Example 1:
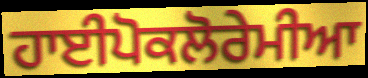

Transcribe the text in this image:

ਹਾਈਪੋਕਲੋਰੇਮੀਆ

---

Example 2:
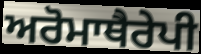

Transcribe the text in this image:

ਅਰੋਮਾਥੈਰੇਪੀ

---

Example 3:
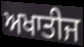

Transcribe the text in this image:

ਅਖਾਤੀਜ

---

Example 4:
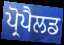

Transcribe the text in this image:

ਪ੍ਰੋਪੈਲਡ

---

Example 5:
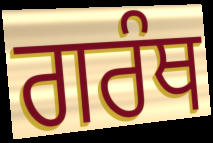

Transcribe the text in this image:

ਗਰੰਥ